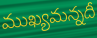
ముఖ్యమన్నదీ